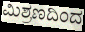
ಮಿಶ್ರಣದಿಂದ